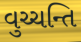
વુચ્ચન્તિ